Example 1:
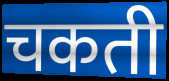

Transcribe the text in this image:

चकती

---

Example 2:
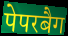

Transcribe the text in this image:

पेपरबैग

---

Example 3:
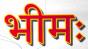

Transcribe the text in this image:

भीमः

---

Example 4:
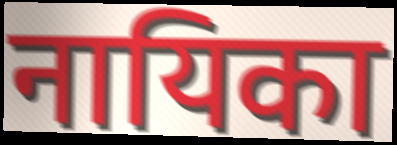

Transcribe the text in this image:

नायिका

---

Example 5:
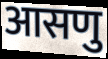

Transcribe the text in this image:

आसणु